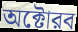
অক্টোরব